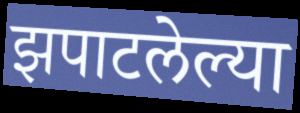
झपाटलेल्या